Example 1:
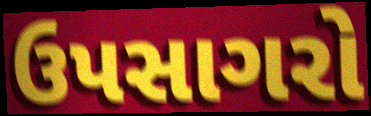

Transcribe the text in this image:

ઉપસાગરો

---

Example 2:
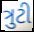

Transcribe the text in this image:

ત્રુટી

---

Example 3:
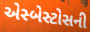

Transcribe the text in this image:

એસ્બેસ્ટોસની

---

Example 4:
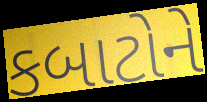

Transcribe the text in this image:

કબાટોને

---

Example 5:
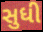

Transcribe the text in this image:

સુધી